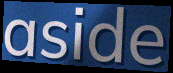
aside